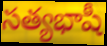
సత్యభాషీ